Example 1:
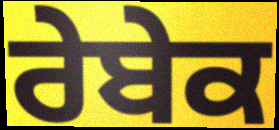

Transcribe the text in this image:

ਰੇਬੇਕ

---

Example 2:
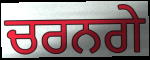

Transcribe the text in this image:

ਚਰਨਗੇ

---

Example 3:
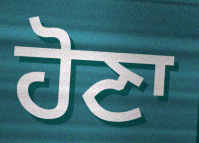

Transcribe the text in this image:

ਹੋਣਾ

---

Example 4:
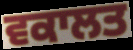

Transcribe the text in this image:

ਵਕਾਲਤ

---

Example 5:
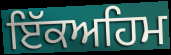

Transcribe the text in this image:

ਇੱਕਅਹਿਮ